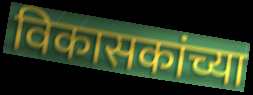
विकासकांच्या